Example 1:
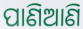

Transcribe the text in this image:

ପାଣିଆଣି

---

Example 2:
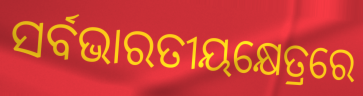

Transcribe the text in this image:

ସର୍ବଭାରତୀୟକ୍ଷେତ୍ରରେ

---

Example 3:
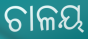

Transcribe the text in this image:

ଚାଳୟ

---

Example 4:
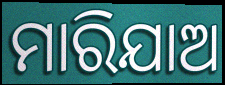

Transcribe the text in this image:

ମାରିଯାଅ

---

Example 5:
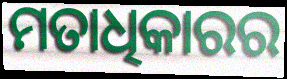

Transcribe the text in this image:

ମତାଧିକାରର